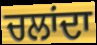
ਚਲਾਂਦਾ